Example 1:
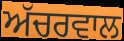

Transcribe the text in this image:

ਅੱਚਰਵਾਲ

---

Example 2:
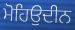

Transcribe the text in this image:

ਮੋਹਿਉਦੀਨ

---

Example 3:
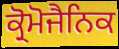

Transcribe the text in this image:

ਕ੍ਰੋਮੋਜੈਨਿਕ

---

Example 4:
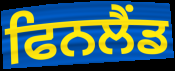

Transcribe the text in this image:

ਫਿਨਲੈਂਡ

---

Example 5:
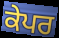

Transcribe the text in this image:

ਕੇਪਰ